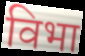
विभा